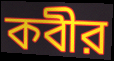
কবীর